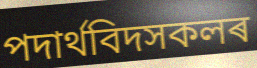
পদাৰ্থবিদসকলৰ